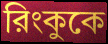
রিংকুকে